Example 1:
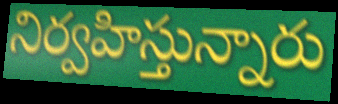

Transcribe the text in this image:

నిర్వహిస్తున్నారు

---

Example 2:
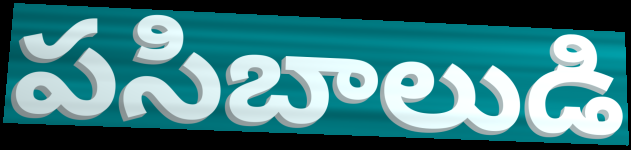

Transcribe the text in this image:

పసిబాలుడి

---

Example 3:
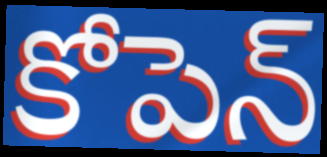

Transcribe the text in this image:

కోపెన్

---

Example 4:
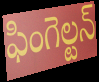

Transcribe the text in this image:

ఫింగెల్టన్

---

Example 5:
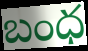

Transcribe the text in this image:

బంధ